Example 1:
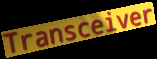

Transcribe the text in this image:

Transceiver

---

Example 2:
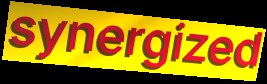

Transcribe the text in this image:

synergized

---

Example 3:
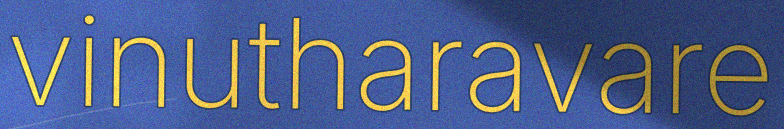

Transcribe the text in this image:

vinutharavare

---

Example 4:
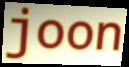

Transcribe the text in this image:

joon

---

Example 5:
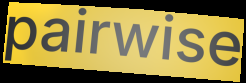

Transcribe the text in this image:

pairwise